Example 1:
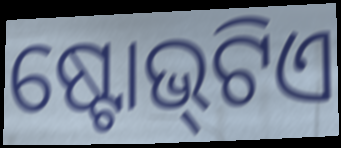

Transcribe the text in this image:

ଷ୍ଟୋଭ୍‌ଟିଏ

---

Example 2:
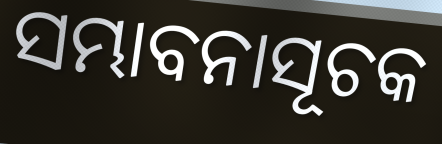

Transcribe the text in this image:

ସମ୍ଭାବନାସୂଚକ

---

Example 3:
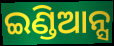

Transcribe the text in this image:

ଇଣ୍ଡିଆନ୍ସ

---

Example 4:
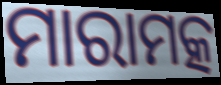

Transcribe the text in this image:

ମାରାମତ୍କ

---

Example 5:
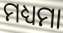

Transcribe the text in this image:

ମଧ୍ୟମା